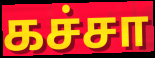
கச்சா